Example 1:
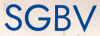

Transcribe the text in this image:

SGBV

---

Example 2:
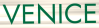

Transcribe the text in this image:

VENICE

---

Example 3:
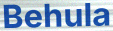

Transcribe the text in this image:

Behula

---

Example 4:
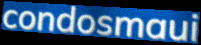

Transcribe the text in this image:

condosmaui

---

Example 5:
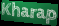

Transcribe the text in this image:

Kharap